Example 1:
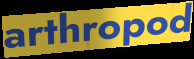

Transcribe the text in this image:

arthropod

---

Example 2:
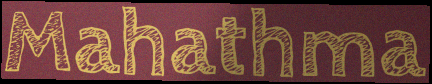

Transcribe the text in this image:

Mahathma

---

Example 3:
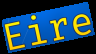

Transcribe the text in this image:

Eire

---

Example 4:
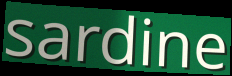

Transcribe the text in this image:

sardine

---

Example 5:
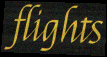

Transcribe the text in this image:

flights